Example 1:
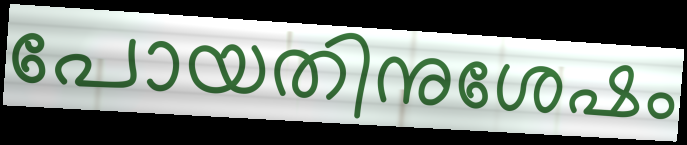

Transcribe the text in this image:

പോയതിനുശേഷം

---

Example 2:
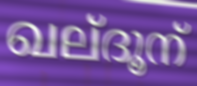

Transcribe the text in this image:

ഖല്ദൂന്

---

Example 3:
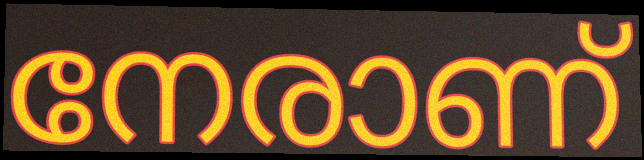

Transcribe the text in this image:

നേരാണ്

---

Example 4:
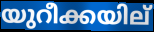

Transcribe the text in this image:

യുറീക്കയില്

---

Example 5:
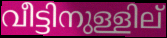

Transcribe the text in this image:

വീട്ടിനുള്ളില്